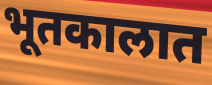
भूतकालात